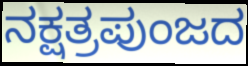
ನಕ್ಷತ್ರಪುಂಜದ